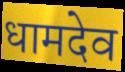
धामदेव